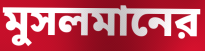
মুসলমানের